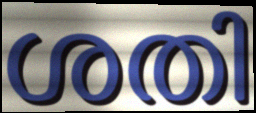
ശതി